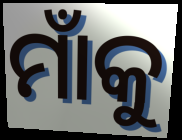
ମାଁକୁ